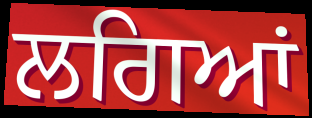
ਲਗਿਆਂ